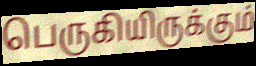
பெருகியிருக்கும்